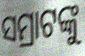
ସମ୍ରାଟଙ୍କୁ